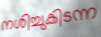
നശിച്ചുകിടന്ന